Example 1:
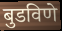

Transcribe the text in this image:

बुडविणे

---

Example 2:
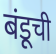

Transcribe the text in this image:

बंडूची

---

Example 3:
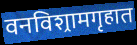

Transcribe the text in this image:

वनविश्रामगृहात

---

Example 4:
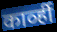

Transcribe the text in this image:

कार्व्ही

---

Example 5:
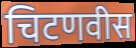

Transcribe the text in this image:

चिटणवीस